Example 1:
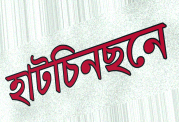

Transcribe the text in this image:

হাটচিনছনে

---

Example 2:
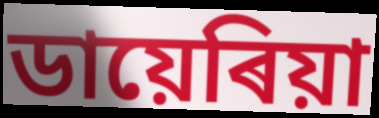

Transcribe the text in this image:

ডায়েৰিয়া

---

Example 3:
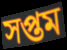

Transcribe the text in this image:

সপ্তম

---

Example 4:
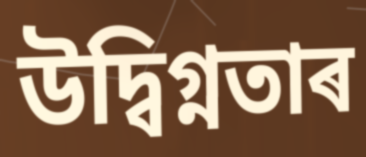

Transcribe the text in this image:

উদ্বিগ্নতাৰ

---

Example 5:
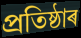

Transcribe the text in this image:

প্ৰতিষ্ঠাৰ